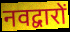
नवद्वारों